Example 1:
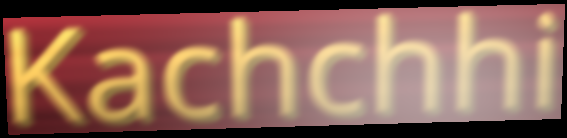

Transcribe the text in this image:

Kachchhi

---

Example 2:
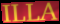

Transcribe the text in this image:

ILLA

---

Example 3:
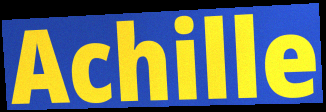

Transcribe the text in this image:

Achille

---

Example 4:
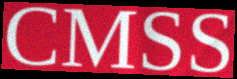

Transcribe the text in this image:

CMSS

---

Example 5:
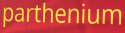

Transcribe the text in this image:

parthenium